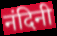
नंदिनी